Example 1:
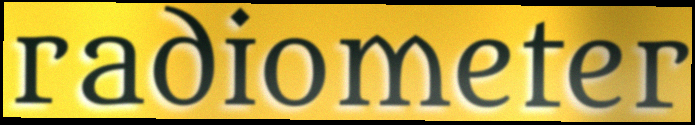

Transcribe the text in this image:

radiometer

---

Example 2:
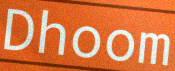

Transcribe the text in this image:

Dhoom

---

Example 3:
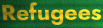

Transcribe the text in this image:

Refugees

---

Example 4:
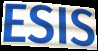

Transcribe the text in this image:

ESIS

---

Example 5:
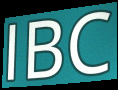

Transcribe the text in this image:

IBC